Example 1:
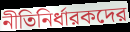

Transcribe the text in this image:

নীতিনির্ধারকদের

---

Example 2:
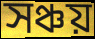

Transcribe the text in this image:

সঞ্চয়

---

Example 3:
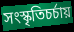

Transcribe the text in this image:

সংস্কৃতিচর্চায়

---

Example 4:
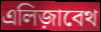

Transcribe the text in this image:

এলিজ়াবেথ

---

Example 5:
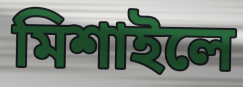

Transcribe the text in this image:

মিশাইলে